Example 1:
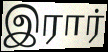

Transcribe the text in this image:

இரார்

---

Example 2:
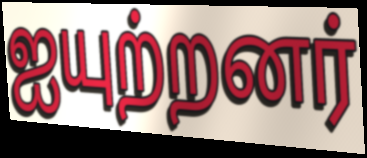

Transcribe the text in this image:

ஐயுற்றனர்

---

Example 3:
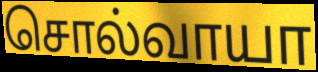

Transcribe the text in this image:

சொல்வாயா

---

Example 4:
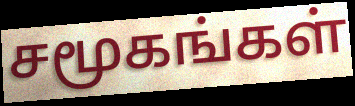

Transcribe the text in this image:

சமூகங்கள்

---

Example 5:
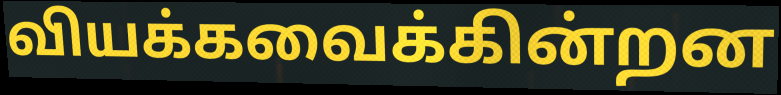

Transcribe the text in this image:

வியக்கவைக்கின்றன